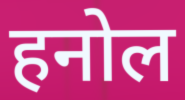
हनोल